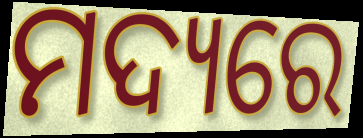
ମଦ୍ୟରେ